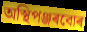
অস্থিপঞ্জৰবোৰ